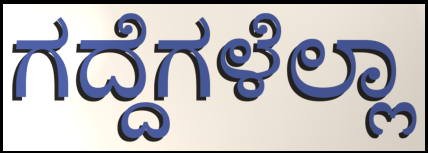
ಗದ್ದೆಗಳೆಲ್ಲಾ